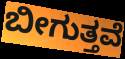
ಬೀಗುತ್ತವೆ